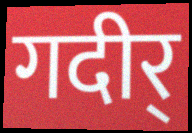
गदीर्